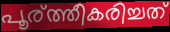
പൂര്ത്തീകരിച്ചത്